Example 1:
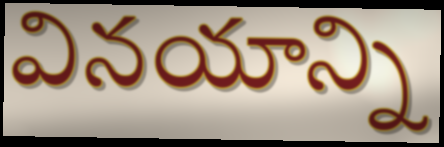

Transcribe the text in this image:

వినయాన్ని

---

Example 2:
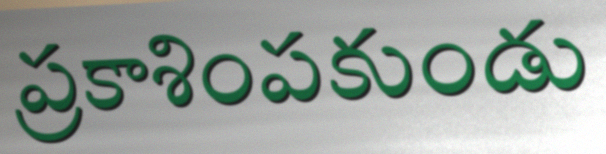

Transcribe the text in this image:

ప్రకాశింపకుండు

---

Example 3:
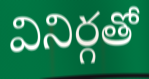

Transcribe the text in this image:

వినిర్గతో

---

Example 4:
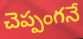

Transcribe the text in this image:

చెప్పంగనే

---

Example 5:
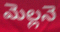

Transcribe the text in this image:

మెల్లనె